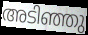
അടിഞ്ഞു